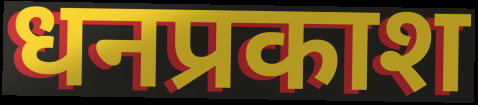
धनप्रकाश